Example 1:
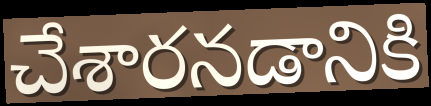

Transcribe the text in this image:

చేశారనడానికి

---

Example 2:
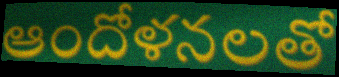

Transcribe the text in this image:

ఆందోళనలతో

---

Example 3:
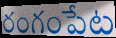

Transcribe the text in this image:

రంగంపేట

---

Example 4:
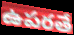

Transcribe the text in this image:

ఉపరతే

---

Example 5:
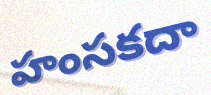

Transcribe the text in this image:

హంసకదా